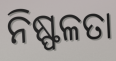
ନିଷ୍ଫଳତା